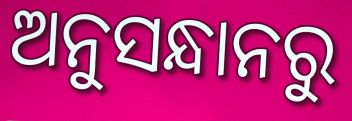
ଅନୁସନ୍ଧାନରୁ